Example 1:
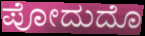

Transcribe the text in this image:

ಪೋದುದೊ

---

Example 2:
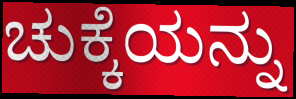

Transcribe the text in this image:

ಚುಕ್ಕೆಯನ್ನು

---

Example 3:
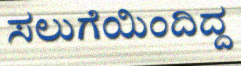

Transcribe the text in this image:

ಸಲುಗೆಯಿಂದಿದ್ದ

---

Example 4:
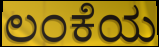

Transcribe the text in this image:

ಲಂಕೆಯ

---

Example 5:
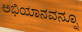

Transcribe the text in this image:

ಅಭಿಯಾನವನ್ನೂ